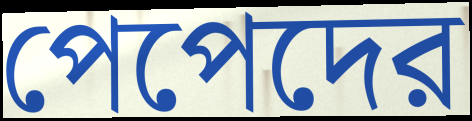
পেপেদের